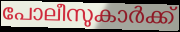
പോലീസുകാർക്ക്